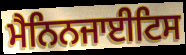
ਮੈਨਿਨਜਾਈਟਿਸ